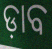
ଡ଼ାବ